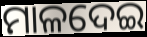
ମାଳଦେଇ